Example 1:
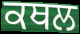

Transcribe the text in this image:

ਕਥਲ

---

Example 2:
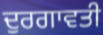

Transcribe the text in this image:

ਦੁਰਗਾਵਤੀ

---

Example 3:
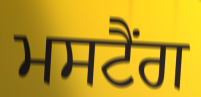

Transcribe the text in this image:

ਮਸਟੈਂਗ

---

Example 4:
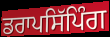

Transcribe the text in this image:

ਡਰਾਪਸਿੱਪਿੰਗ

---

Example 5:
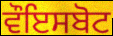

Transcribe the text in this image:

ਵੌਇਸਬੋਟ